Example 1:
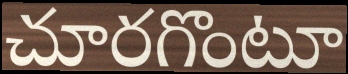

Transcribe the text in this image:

చూరగొంటూ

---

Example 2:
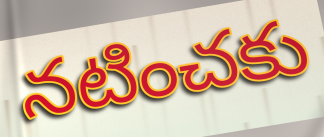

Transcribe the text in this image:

నటించకు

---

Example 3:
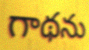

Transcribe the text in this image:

గాథను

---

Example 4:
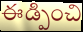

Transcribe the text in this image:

ఈడ్పించి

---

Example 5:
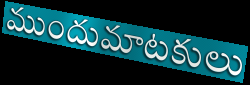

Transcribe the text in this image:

ముందుమాటకులు